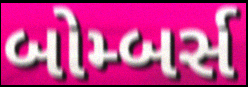
બોમ્બર્સ